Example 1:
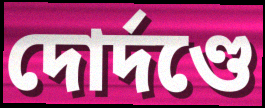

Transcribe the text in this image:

দোর্দণ্ডে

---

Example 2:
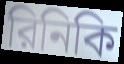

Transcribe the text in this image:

রিনিকি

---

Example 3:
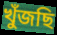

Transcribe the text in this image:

খুঁজছি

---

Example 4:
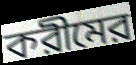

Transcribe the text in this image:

করীমের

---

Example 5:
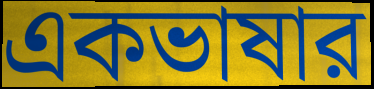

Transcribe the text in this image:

একভাষার